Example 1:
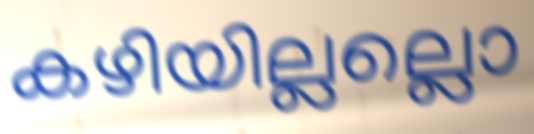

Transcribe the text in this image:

കഴിയില്ലല്ലൊ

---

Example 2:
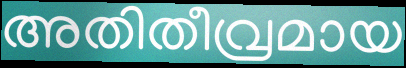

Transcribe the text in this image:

അതിതീവ്രമായ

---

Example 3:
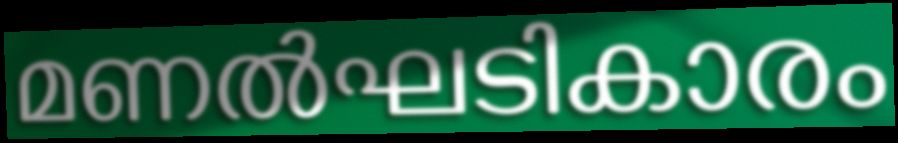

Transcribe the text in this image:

മണൽഘടികാരം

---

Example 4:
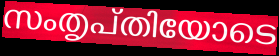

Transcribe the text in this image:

സംതൃപ്‌തിയോടെ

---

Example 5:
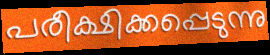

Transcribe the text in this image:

പരീക്ഷിക്കപ്പെടുന്നു